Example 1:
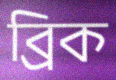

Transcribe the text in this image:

ব্রিক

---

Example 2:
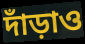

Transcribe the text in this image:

দাঁড়াও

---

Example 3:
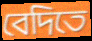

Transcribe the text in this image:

বেদিতে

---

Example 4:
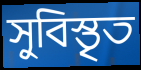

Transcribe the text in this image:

সুবিস্তৃত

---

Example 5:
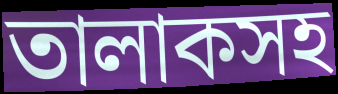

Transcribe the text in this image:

তালাকসহ